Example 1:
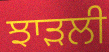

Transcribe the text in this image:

ਝਾੜਲੀ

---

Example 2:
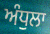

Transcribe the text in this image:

ਅੰਧੁਲਾ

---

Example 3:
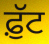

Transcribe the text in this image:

ਫ਼ੁੱਟ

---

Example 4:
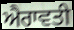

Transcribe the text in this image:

ਐਰਾਵਤੀ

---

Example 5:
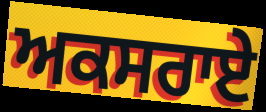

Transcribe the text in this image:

ਅਕਸਰਾਏ